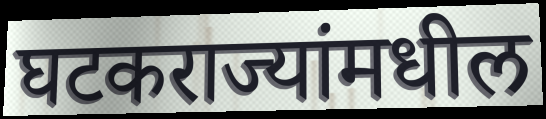
घटकराज्यांमधील